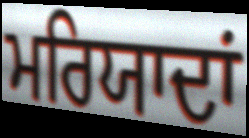
ਮਰਿਯਾਦਾਂ